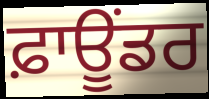
ਫ਼ਾਊਂਡਰ